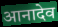
आनादेव